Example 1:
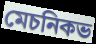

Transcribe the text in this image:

মেচনিকভ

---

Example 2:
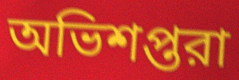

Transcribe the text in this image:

অভিশপ্তরা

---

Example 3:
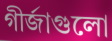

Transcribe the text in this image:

গীর্জাগুলো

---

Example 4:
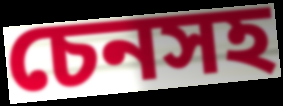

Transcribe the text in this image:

চেনসহ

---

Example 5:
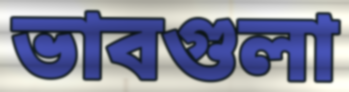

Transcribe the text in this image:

ভাবগুলা